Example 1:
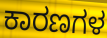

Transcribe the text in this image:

ಕಾರಣಗಳ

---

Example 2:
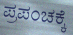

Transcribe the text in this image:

ಪ್ರಪಂಚಕ್ಕೆ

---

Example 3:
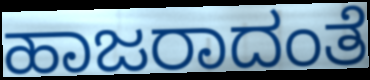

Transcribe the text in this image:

ಹಾಜರಾದಂತೆ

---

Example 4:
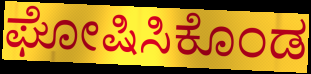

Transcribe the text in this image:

ಘೋಷಿಸಿಕೊಂಡ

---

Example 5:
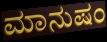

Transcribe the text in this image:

ಮಾನುಷಂ